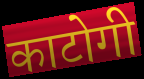
काटोगी